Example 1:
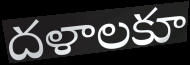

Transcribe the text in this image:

దళాలకూ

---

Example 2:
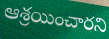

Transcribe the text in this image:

ఆశ్రయించారని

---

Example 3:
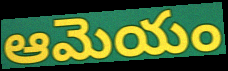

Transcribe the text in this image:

ఆమెయం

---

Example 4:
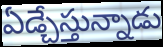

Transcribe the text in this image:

ఏడ్చేస్తున్నాడు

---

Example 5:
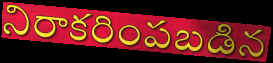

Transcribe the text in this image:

నిరాకరింపబడిన